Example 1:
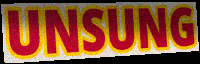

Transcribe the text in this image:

UNSUNG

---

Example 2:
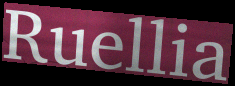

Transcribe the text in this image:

Ruellia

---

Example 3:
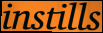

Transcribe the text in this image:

instills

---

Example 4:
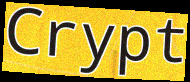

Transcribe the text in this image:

Crypt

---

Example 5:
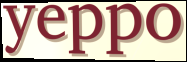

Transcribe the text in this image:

yeppo